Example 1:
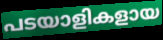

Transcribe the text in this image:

പടയാളികളായ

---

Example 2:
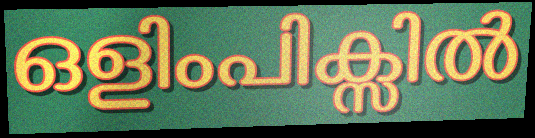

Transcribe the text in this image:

ഒളിംപിക്സിൽ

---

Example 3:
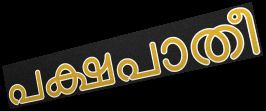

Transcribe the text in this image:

പക്ഷപാതീ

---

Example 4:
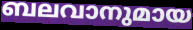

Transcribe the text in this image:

ബലവാനുമായ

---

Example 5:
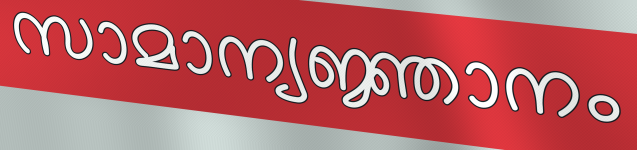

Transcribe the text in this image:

സാമാന്യജ്ഞാനം